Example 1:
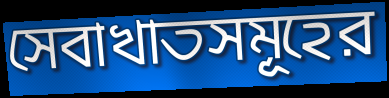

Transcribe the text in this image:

সেবাখাতসমূহের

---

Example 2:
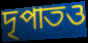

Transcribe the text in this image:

দৃপাতও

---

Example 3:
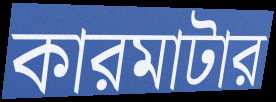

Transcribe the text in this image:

কারমাটার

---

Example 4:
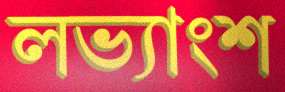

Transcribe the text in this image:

লভ্যাংশ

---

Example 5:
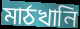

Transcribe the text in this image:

মাঠখানি